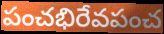
పంచభిరేవపంచ